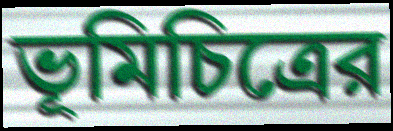
ভূমিচিত্রের